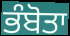
ਭੰਬੋਤਾ